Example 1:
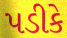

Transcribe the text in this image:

પડીકે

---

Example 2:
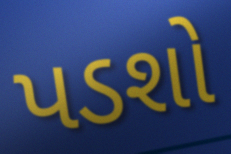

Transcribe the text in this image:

પડશો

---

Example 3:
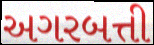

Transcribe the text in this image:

અગરબત્તી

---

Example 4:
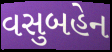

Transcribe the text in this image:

વસુબહેન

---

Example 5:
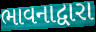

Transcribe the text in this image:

ભાવનાદ્વારા